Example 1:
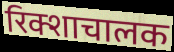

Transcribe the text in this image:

रिक्शाचालक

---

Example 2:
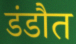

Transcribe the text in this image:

डंडौत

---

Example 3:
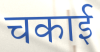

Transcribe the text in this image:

चकाई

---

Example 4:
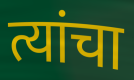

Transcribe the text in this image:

त्यांचा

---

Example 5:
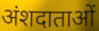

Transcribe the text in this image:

अंशदाताओं